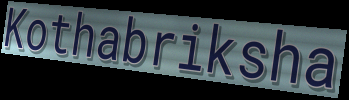
Kothabriksha